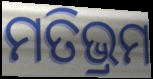
ମତିଭ୍ରମ